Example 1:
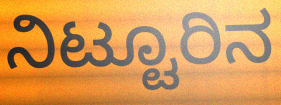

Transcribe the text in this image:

ನಿಟ್ಟೂರಿನ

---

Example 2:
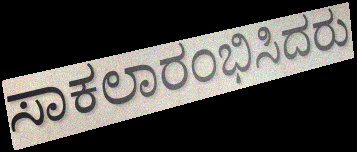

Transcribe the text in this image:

ಸಾಕಲಾರಂಭಿಸಿದರು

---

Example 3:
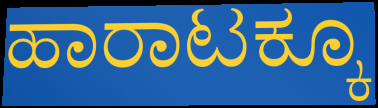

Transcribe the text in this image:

ಹಾರಾಟಕ್ಕೂ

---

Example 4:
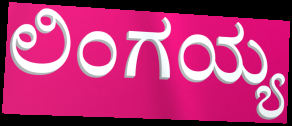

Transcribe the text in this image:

ಲಿಂಗಯ್ಯ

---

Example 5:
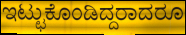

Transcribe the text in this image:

ಇಟ್ಟುಕೊಂಡಿದ್ದರಾದರೂ